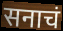
सनाचं